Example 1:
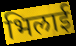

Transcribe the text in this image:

भिलाई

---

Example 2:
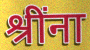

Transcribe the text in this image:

श्रींना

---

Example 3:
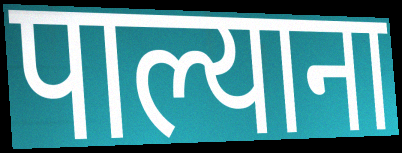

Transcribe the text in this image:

पाल्याना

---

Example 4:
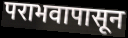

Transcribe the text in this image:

पराभवापासून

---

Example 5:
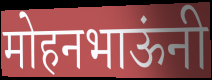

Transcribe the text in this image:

मोहनभाऊंनी